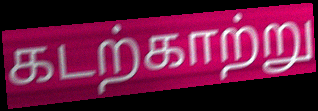
கடற்காற்று